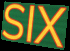
SIX